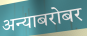
अन्याबरोबर